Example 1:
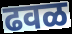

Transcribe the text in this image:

ढवळ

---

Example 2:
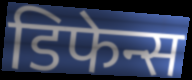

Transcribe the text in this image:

डिफेन्स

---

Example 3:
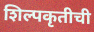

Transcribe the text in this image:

शिल्पकृतीची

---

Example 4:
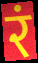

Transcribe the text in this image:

रं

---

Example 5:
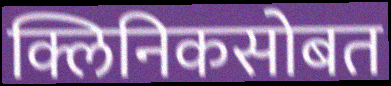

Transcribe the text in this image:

क्लिनिकसोबत